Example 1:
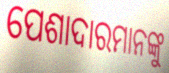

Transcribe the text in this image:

ପେଶାଦାରମାନଙ୍କୁ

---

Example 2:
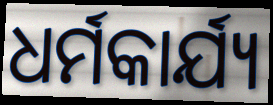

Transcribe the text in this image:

ଧର୍ମକାର୍ଯ୍ୟ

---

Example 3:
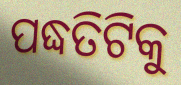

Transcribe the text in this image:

ପଦ୍ଧତିଟିକୁ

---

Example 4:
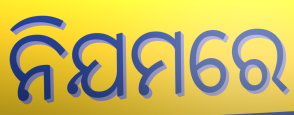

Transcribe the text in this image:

ନିଯମରେ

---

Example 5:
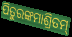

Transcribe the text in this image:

ପିତୁରଙ୍କମାଶ୍ରିତମ୍